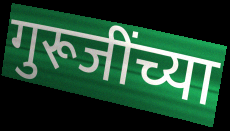
गुरूजींच्या